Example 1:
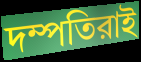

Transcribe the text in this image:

দম্পতিরাই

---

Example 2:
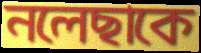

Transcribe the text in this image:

নলেছাকে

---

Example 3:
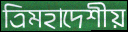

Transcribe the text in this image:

ত্রিমহাদেশীয়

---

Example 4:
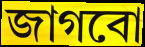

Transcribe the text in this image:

জাগবো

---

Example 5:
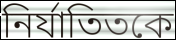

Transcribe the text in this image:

নির্যাতিতকে